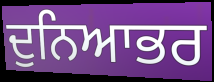
ਦੁਨਿਆਭਰ